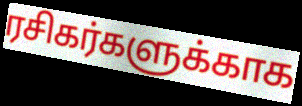
ரசிகர்களுக்காக